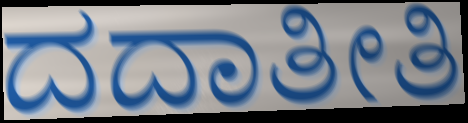
ದದಾತೀತಿ